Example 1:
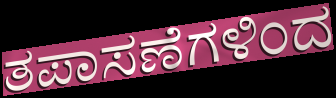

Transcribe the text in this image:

ತಪಾಸಣೆಗಳಿಂದ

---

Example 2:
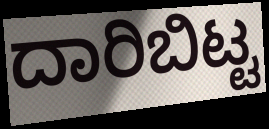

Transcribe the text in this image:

ದಾರಿಬಿಟ್ಟ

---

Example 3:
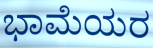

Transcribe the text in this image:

ಭಾಮೆಯರ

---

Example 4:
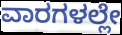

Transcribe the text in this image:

ವಾರಗಳಲ್ಲೇ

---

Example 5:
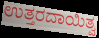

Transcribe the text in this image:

ಉತ್ತರದಾಯಿತ್ವ